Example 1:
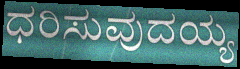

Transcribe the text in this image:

ಧರಿಸುವುದಯ್ಯ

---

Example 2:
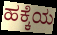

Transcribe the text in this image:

ಹಕ್ಕೆಯ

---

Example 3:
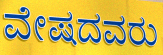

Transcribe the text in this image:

ವೇಷದವರು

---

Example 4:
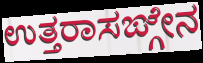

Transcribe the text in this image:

ಉತ್ತರಾಸಙ್ಗೇನ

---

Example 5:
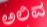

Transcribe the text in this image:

ಅಲಿವ